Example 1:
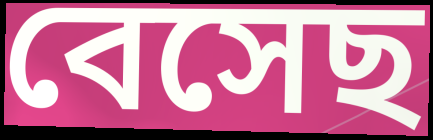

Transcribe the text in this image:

বেসেছ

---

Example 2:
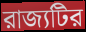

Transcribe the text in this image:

রাজ্যটির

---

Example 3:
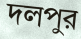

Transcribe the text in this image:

দলপুর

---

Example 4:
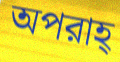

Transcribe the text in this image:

অপরাহ্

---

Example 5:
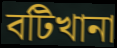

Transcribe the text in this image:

বটিখানা